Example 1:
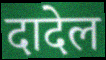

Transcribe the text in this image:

दादेल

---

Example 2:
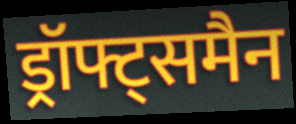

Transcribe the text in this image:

ड्रॉफ्ट्समैन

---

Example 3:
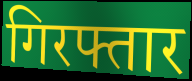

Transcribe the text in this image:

गिरफ्तार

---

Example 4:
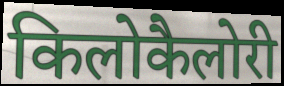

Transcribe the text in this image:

किलोकैलोरी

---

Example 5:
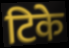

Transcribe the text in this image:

टिके